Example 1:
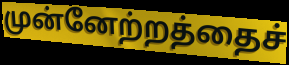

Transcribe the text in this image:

முன்னேற்றத்தைச்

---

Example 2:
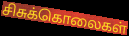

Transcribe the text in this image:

சிசுக்கொலைகள்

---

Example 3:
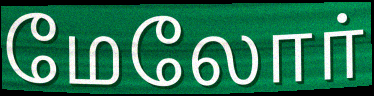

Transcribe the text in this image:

மேலோர்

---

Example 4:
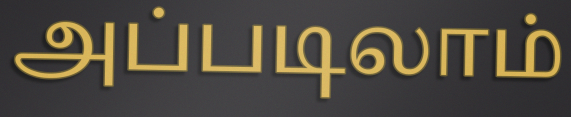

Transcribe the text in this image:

அப்படிலாம்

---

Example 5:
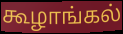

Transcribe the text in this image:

கூழாங்கல்